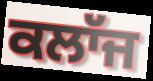
ਕਲਾੱਜ